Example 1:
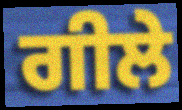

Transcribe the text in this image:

ਗੀਲੇ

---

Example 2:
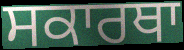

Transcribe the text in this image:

ਸਕਾਰਥਾ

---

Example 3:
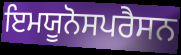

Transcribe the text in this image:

ਇਮਯੂਨੋਸਪਰੈਸਨ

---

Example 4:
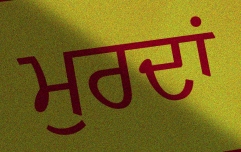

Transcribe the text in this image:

ਮੁਰਦਾਂ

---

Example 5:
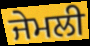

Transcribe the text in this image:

ਜੇਮਲੀ